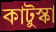
কাটুস্কা